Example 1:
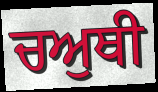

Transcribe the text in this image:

ਚਅੁਥੀ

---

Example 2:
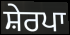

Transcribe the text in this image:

ਸ਼ੇਰਪਾ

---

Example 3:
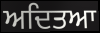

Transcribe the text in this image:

ਅਦਿਤਆ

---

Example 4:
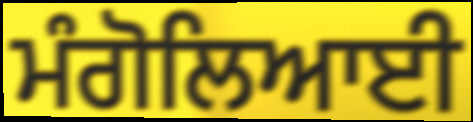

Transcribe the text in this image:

ਮੰਗੋਲਿਆਈ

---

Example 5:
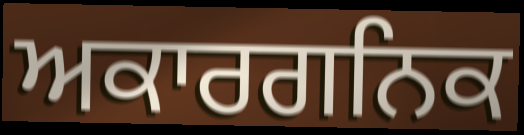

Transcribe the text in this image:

ਅਕਾਰਗਨਿਕ